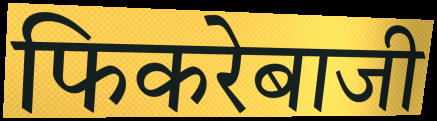
फिकरेबाजी